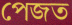
পেজত